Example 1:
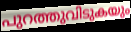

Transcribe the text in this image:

പുറത്തുവിടുകയും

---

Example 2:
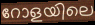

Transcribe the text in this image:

റോളയിലെ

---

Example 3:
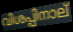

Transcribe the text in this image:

വിശപ്പിനാല്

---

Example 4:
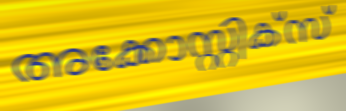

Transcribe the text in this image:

അക്കോസ്റ്റിക്സ്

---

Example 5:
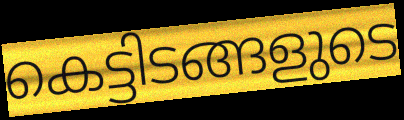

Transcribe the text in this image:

കെട്ടിടങ്ങളുടെ